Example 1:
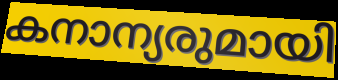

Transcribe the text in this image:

കനാന്യരുമായി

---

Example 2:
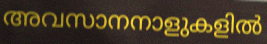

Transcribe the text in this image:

അവസാനനാളുകളിൽ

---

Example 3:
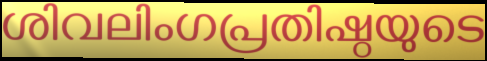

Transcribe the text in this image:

ശിവലിംഗപ്രതിഷ്ഠയുടെ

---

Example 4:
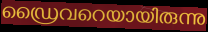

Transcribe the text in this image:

ഡ്രൈവറെയായിരുന്നു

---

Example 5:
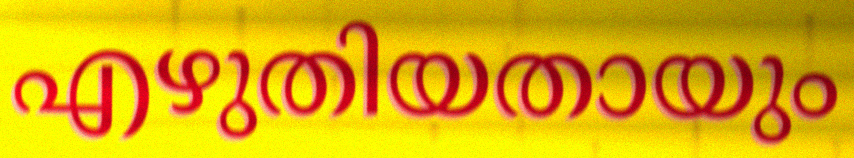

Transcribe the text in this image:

എഴുതിയതായും